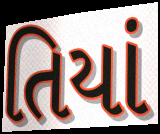
તિયાં